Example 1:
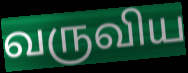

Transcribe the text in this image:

வருவிய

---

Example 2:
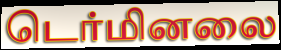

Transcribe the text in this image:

டெர்மினலை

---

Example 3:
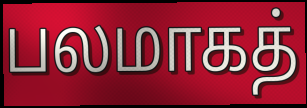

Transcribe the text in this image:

பலமாகத்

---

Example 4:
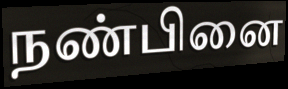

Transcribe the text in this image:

நண்பினை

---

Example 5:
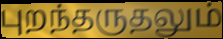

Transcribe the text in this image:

புறந்தருதலும்